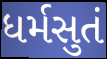
ધર્મસુતં